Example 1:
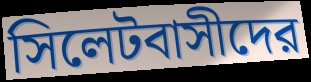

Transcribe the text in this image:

সিলেটবাসীদের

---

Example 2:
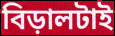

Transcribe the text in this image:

বিড়ালটাই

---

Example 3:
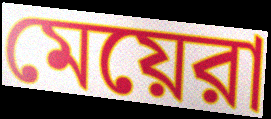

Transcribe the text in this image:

মেয়েরা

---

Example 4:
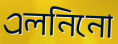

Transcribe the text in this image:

এলনিনো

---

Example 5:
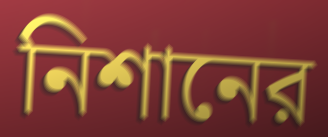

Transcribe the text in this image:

নিশানের